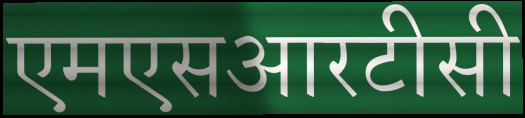
एमएसआरटीसी